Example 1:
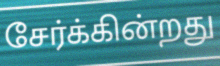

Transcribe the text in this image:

சேர்க்கின்றது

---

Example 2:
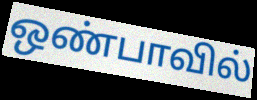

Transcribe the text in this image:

ஒண்பாவில்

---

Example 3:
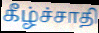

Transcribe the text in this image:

கீழ்ச்சாதி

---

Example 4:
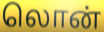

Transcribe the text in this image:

லொன்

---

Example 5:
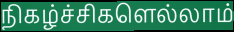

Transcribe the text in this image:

நிகழ்ச்சிகளெல்லாம்